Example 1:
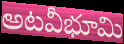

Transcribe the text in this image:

అటవీభూమి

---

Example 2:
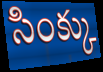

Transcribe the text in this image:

సింక్కు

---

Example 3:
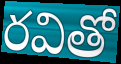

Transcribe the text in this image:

రవితో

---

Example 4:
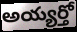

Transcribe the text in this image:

అయ్యర్తో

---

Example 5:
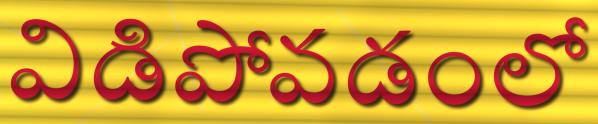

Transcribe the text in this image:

విడిపోవడంలో